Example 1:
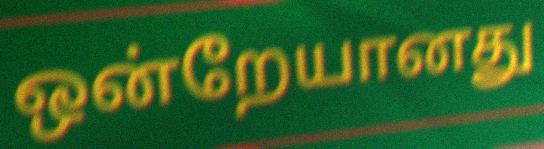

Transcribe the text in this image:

ஒன்றேயானது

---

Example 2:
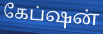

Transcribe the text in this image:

கேப்ஷன்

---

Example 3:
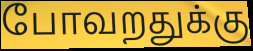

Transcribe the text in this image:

போவறதுக்கு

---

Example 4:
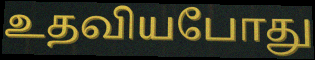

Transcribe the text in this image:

உதவியபோது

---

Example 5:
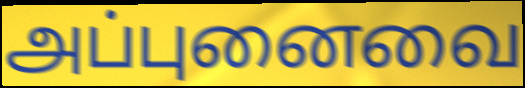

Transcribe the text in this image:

அப்புனைவை